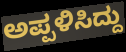
ಅಪ್ಪಳಿಸಿದ್ದು